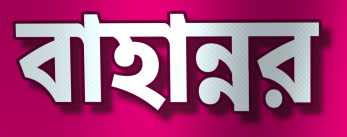
বাহান্নর